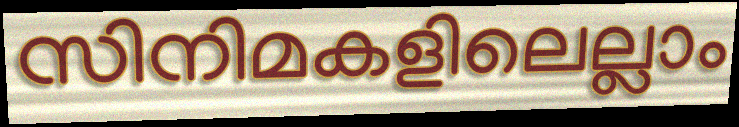
സിനിമകളിലെല്ലാം